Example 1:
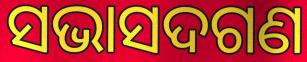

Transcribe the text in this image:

ସଭାସଦଗଣ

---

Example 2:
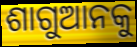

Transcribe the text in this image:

ଶାଗୁଆନକୁ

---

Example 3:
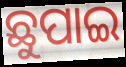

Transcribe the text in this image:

ଛୁପାଇ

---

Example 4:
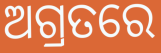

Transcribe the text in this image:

ଅଗ୍ରତରେ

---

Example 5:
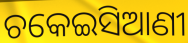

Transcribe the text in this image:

ଚକେଇସିଆଣୀ